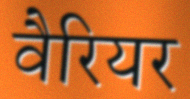
वैरियर